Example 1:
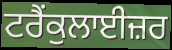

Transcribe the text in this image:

ਟਰੈਂਕੁਲਾਈਜ਼ਰ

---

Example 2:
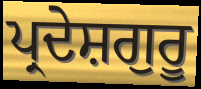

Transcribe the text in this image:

ਪ੍ਰਦੇਸ਼ਗੁਰੂ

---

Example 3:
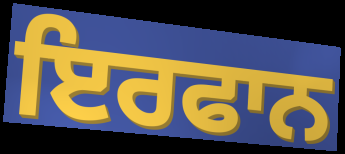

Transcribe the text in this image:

ਇਰਫਾਨ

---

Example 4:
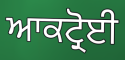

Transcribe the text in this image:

ਆਕਟ੍ਰੋਈ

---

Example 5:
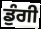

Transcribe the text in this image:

ਡੁੰਗੀ